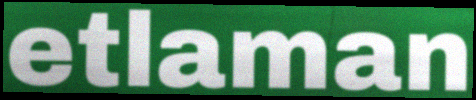
etlaman